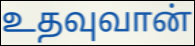
உதவுவான்